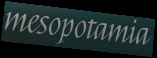
mesopotamia